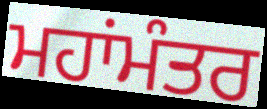
ਮਹਾਂਮੰਤਰ